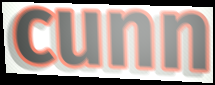
cunn